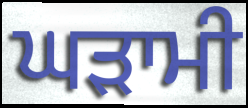
ਘੜਾਮੀ